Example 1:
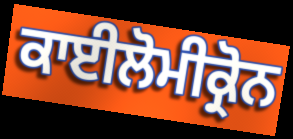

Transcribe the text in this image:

ਕਾਈਲੋਮੀਕ੍ਰੋਨ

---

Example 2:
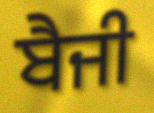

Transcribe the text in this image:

ਬੈਜੀ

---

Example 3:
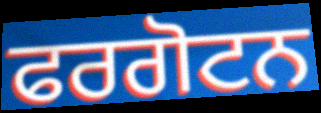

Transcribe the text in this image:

ਫਰਗੋਟਨ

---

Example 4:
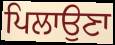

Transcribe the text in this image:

ਪਿਲਾਉਣਾ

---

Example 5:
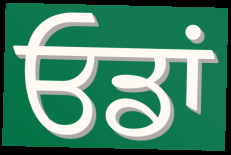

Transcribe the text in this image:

ਓਡਾਂ